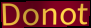
Donot